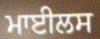
ਮਾਈਲਸ